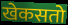
खेकसतो